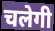
चलेगी